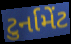
ટુર્નામેંટ